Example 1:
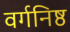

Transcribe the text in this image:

वर्गनिष्ठ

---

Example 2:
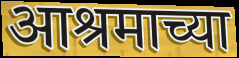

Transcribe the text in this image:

आश्रमाच्या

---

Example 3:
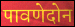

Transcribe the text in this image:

पावणेदोन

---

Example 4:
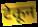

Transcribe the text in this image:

टेकून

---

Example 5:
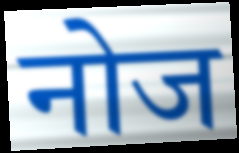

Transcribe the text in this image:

नोज